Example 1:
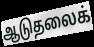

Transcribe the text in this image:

ஆடுதலைக்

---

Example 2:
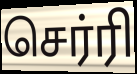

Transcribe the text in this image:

செர்ரி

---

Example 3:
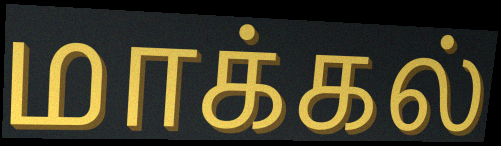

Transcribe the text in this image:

மாக்கல்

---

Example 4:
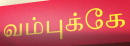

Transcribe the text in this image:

வம்புக்கே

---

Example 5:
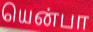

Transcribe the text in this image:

யென்பா